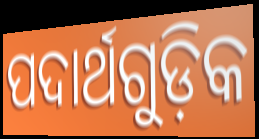
ପଦାର୍ଥଗୁଡ଼ିକ